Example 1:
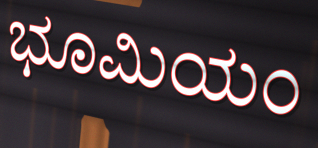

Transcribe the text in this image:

ಭೂಮಿಯಂ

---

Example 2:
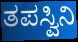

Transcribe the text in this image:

ತಪಸ್ವಿನಿ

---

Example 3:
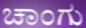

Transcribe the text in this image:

ಚಾಂಗು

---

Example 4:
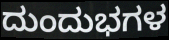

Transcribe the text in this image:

ದುಂದುಭಗಳ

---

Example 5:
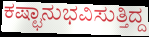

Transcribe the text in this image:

ಕಷ್ಟಾನುಭವಿಸುತ್ತಿದ್ದ